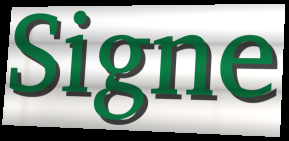
Signe